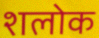
शलोक